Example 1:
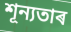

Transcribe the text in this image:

শূন্যতাৰ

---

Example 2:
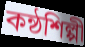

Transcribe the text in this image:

কন্ঠশিল্পী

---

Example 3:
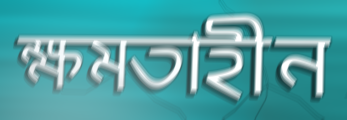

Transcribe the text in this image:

ক্ষমতাহীন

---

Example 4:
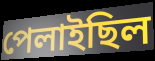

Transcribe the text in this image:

পেলাইছিল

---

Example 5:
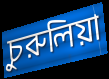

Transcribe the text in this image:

চুৰুলিয়া